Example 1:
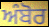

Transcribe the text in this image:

ਅੰਬੋਰ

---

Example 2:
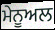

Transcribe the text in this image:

ਮੇਨੂਅਲ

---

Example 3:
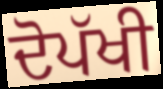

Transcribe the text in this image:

ਦੋਪੱਖੀ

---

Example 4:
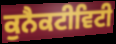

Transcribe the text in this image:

ਕੁਨੈਕਟੀਵਿਟੀ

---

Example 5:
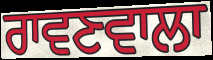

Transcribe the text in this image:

ਰਾਵਣਵਾਲਾ